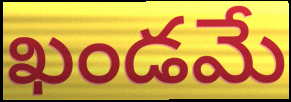
ఖండమే